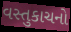
વસ્તુકાચનો